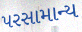
પરસામાન્ય